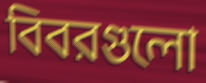
বিবরগুলো